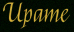
Upame